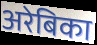
अरेबिका